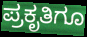
ಪ್ರಕೃತಿಗೂ